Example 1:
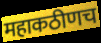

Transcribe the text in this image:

महाकठीणच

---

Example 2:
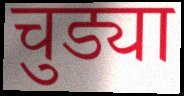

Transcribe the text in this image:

चुड्या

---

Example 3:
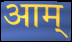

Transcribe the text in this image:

आम्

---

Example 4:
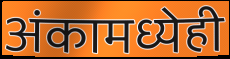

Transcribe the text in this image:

अंकामध्येही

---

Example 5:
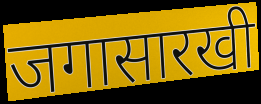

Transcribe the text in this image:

जगासारखी